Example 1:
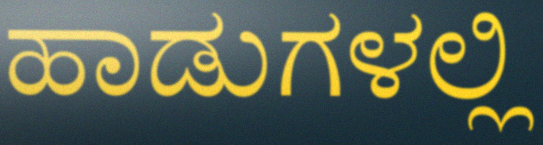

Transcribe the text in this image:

ಹಾಡುಗಳಲ್ಲಿ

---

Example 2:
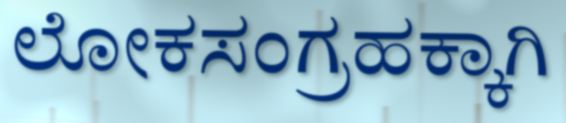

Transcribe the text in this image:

ಲೋಕಸಂಗ್ರಹಕ್ಕಾಗಿ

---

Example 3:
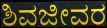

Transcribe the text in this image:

ಶಿವಜೀವರ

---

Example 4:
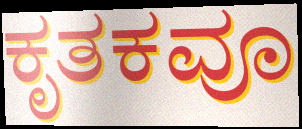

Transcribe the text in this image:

ಕೃತಕವೂ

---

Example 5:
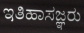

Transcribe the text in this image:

ಇತಿಹಾಸಜ್ಞರು